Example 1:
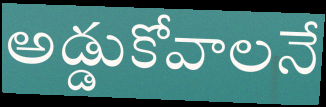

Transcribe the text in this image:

అడ్డుకోవాలనే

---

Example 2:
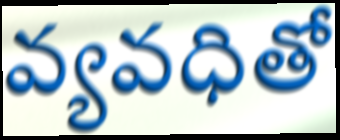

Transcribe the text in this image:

వ్యవధితో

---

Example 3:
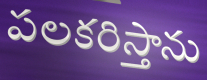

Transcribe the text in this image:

పలకరిస్తాను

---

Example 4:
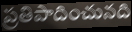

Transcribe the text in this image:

ప్రతిపాదించునది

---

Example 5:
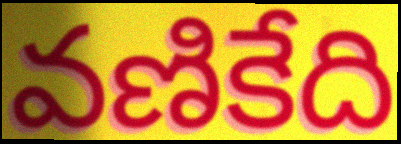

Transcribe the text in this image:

వణికేది